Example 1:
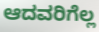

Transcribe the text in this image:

ಆದವರಿಗೆಲ್ಲ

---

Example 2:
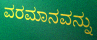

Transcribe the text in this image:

ವರಮಾನವನ್ನು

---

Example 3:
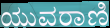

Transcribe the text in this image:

ಯುವರಾಣಿ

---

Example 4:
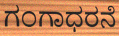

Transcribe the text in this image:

ಗಂಗಾಧರನೆ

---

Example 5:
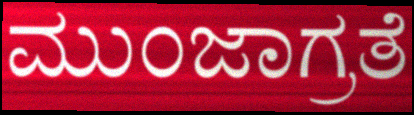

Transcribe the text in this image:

ಮುಂಜಾಗ್ರತೆ